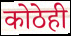
कोठेही